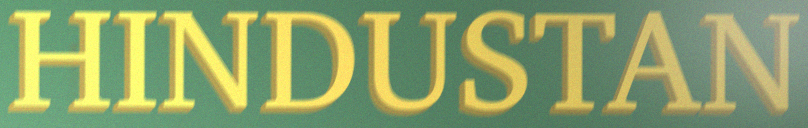
HINDUSTAN